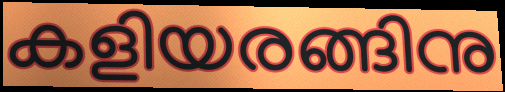
കളിയരങ്ങിനു